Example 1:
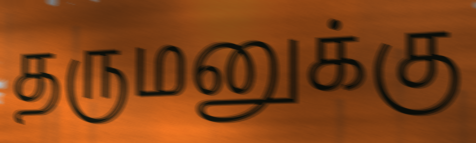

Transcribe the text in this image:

தருமனுக்கு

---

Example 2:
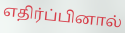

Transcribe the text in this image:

எதிர்ப்பினால்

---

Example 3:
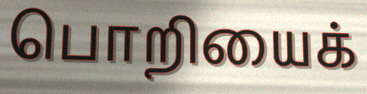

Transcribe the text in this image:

பொறியைக்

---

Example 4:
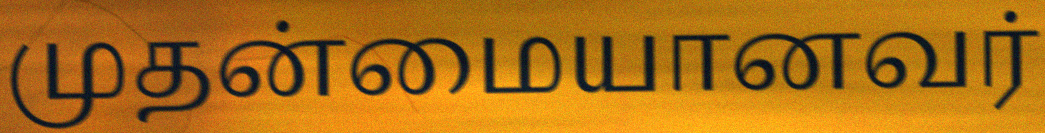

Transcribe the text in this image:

முதன்மையானவர்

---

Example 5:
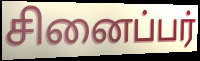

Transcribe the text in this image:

சினைப்பர்